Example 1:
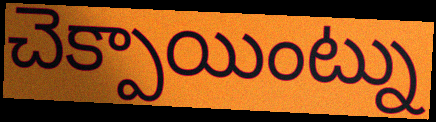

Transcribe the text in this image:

చెక్పాయింట్ను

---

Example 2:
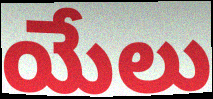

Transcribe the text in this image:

యేలు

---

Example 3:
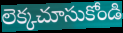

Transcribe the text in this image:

లెక్కచూసుకోండి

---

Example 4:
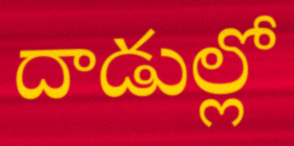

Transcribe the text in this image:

దాడుల్లో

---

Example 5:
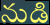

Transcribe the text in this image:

నుడి